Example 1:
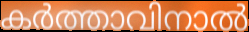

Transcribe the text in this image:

കർത്താവിനാൽ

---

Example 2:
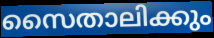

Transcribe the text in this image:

സൈതാലിക്കും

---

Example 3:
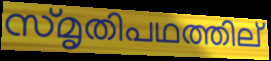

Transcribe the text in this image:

സ്മൃതിപഥത്തില്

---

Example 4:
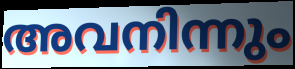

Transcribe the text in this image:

അവനിന്നും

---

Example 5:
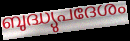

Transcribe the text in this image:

ബുദ്ധ്യുപദേശം